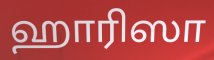
ஹாரிஸா